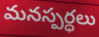
మనస్పర్ధలు